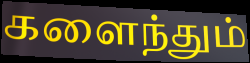
களைந்தும்